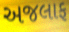
અજલાફ